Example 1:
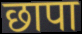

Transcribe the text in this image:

छापा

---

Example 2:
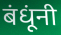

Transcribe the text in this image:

बंधूंनी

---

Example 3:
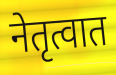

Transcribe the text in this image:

नेतृत्वात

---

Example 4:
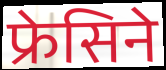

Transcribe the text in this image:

फ्रेसिने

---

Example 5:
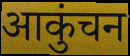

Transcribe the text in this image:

आकुंचन